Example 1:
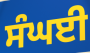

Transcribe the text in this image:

ਸੰਘਈ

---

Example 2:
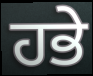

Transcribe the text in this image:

ਹਭੇ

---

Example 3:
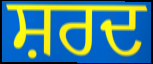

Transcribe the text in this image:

ਸ਼ਰਦ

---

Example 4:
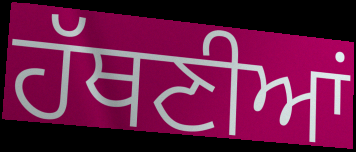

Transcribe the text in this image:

ਹੱਥਣੀਆਂ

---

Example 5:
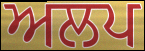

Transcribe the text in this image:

ਅਲਪ